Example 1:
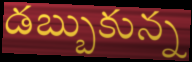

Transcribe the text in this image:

డబ్బుకున్న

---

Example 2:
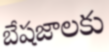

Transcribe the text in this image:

బేషజాలకు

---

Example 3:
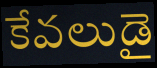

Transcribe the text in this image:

కేవలుడై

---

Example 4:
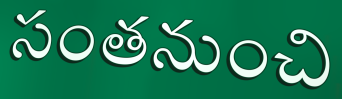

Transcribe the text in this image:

సంతనుంచి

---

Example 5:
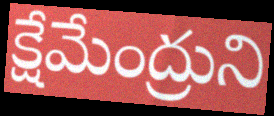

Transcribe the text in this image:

క్షేమేంద్రుని